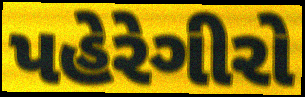
પહેરેગીરો